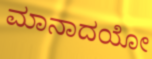
ಮಾನಾದಯೋ